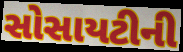
સોસાયટીની